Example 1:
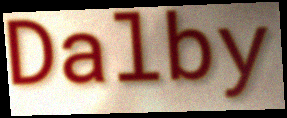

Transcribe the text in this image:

Dalby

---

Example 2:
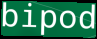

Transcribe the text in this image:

bipod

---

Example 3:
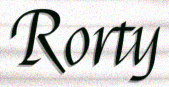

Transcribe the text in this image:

Rorty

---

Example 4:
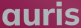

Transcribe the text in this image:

auris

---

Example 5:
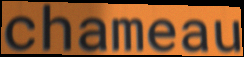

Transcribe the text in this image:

chameau